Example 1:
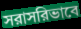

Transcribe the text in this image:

সরাসরিভাবে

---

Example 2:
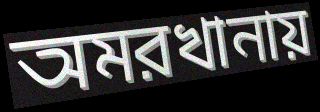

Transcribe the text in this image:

অমরখানায়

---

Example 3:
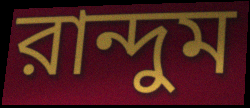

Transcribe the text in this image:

রান্দুম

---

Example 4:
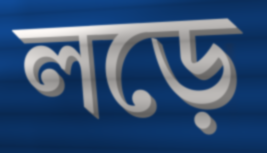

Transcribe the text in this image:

লড়ে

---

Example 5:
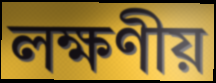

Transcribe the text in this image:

লক্ষণীয়